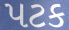
પટક